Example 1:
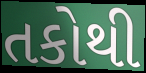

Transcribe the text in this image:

તકોથી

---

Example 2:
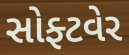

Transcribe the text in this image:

સોફ્ટવેર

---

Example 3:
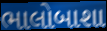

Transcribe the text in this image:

ભાલોબાશા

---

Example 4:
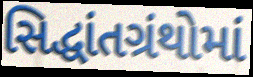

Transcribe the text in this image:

સિદ્ધાંતગ્રંથોમાં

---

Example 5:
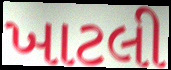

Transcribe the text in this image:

ખાટલી